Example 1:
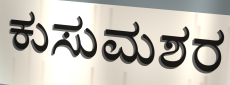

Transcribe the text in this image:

ಕುಸುಮಶರ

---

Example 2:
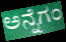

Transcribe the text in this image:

ಅನ್ನೆಗಂ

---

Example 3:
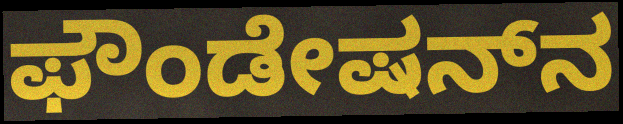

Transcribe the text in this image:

ಫೌಂಡೇಷನ್‌ನ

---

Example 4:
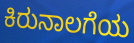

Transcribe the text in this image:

ಕಿರುನಾಲಗೆಯ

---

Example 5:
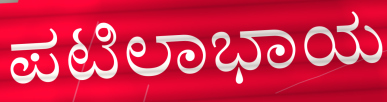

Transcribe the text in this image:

ಪಟಿಲಾಭಾಯ